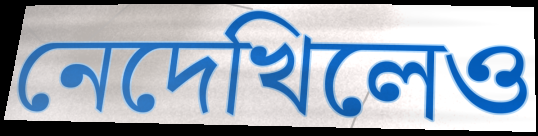
নেদেখিলেও